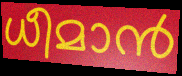
ധീമാൻ